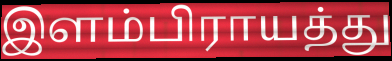
இளம்பிராயத்து